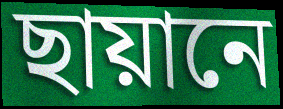
ছায়ানে